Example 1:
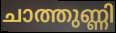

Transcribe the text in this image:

ചാത്തുണ്ണി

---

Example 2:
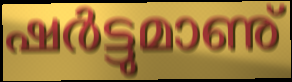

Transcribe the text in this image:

ഷർട്ടുമാണു്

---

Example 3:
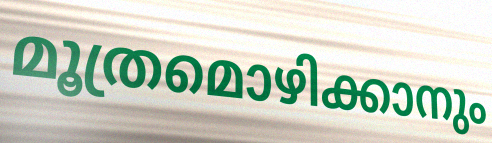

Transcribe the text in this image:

മൂത്രമൊഴിക്കാനും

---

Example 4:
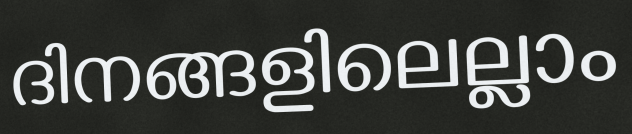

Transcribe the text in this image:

ദിനങ്ങളിലെല്ലാം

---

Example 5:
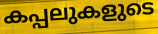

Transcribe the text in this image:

കപ്പലുകളുടെ